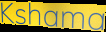
Kshama